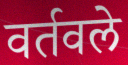
वर्तवले